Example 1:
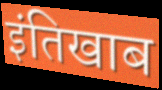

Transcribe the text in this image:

इंतिखाब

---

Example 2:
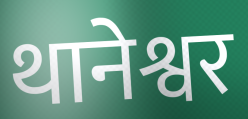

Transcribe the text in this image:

थानेश्वर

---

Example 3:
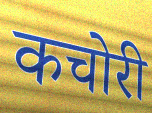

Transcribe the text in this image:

कचोरी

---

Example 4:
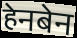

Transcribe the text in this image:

हेनबेन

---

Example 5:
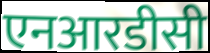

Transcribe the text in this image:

एनआरडीसी